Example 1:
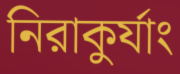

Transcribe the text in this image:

নিরাকুর্যাং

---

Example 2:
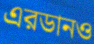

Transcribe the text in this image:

এরডানও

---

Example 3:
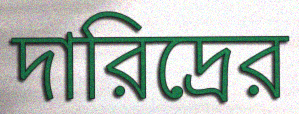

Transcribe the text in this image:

দারিদ্রের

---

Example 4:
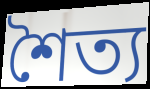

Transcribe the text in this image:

শৈত্য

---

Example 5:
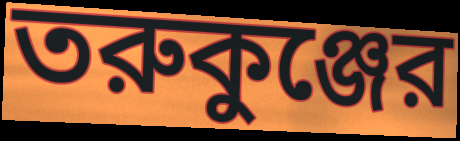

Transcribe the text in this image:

তরুকুঞ্জের